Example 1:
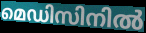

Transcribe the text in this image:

മെഡിസിനിൽ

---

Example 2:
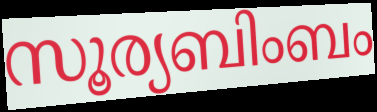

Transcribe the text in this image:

സൂര്യബിംബം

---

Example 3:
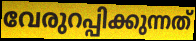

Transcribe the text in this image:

വേരുറപ്പിക്കുന്നത്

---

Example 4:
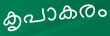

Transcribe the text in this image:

കൃപാകരം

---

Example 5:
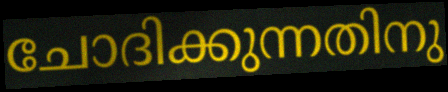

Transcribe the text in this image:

ചോദിക്കുന്നതിനു